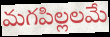
మగపిల్లలమే